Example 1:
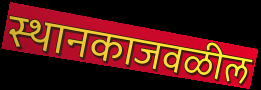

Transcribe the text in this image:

स्थानकाजवळील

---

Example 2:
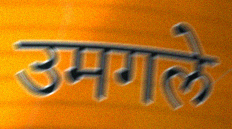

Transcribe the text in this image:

उमगले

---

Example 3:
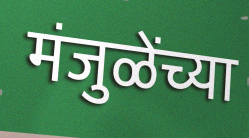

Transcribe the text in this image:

मंजुळेंच्या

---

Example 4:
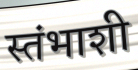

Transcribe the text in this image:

स्तंभाशी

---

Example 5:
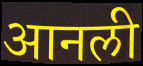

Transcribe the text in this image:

आनली